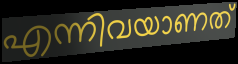
എന്നിവയാണത്